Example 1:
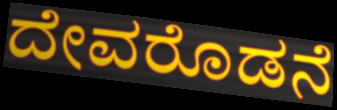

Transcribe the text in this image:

ದೇವರೊಡನೆ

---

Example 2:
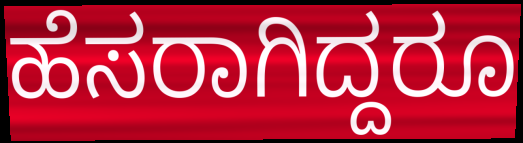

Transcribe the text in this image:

ಹೆಸರಾಗಿದ್ದರೂ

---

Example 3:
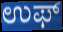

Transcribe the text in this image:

ಉಫ್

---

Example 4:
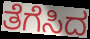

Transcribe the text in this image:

ತೆಗೆಸಿದ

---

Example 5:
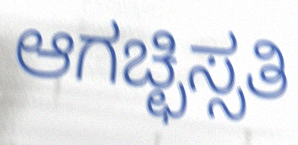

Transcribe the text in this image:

ಆಗಚ್ಛಿಸ್ಸತಿ